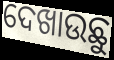
ଦେଖାଉଛୁ